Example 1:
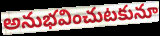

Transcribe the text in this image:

అనుభవించుటకునూ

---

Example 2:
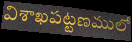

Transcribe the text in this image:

విశాఖపట్టణములో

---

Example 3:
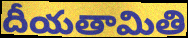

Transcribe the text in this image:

దీయతామితి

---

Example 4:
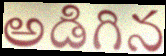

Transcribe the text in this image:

అడిగిన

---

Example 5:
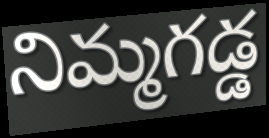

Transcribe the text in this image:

నిమ్మగడ్డ